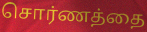
சொர்ணத்தை